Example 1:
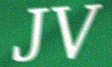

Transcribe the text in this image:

JV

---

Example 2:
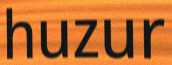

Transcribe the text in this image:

huzur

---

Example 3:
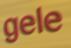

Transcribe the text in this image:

gele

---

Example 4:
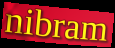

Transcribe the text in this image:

nibram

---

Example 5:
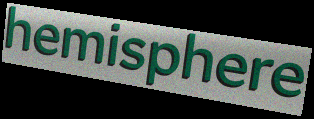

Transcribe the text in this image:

hemisphere